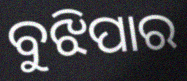
ବୁଝିପାର